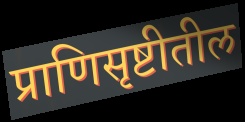
प्राणिसृष्टीतील